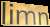
limn